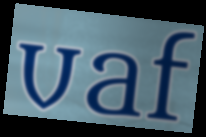
uaf